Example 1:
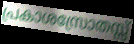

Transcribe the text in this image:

പ്രകാശസ്രോതസ്സ്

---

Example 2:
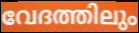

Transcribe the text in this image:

വേദത്തിലും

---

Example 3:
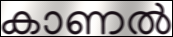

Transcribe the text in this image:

കാണൽ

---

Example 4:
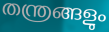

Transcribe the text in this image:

തന്ത്രങ്ങളും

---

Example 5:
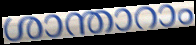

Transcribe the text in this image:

ശാന്താറാം